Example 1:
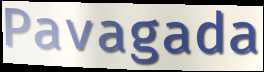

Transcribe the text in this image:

Pavagada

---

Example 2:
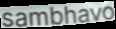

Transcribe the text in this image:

sambhavo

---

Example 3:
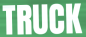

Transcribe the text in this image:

TRUCK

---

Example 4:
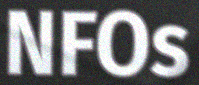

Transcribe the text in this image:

NFOs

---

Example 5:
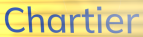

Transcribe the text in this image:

Chartier